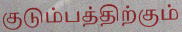
குடும்பத்திற்கும்